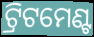
ଟ୍ରିଟମେଣ୍ଟ